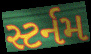
સ્ટર્નમ